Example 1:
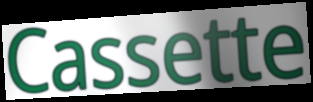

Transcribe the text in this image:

Cassette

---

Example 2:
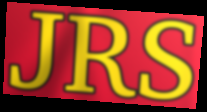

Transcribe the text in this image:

JRS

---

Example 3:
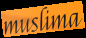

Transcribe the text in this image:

muslima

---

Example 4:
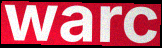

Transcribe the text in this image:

warc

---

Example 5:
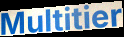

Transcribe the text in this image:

Multitier